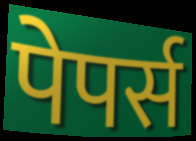
पेपर्स